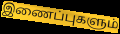
இணைப்புகளும்